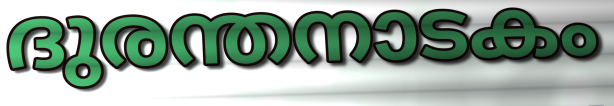
ദുരന്തനാടകം